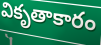
వికృతాకారం